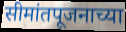
सीमांतपूजनाच्या